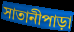
সাতানীপাড়া